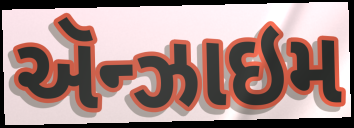
ઍન્ઝાઇમ